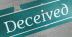
Deceived